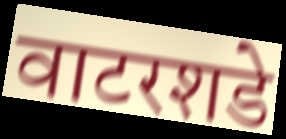
वाटरशडे